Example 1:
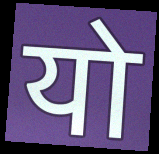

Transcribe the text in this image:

यो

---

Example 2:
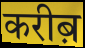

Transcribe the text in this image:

करीब़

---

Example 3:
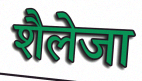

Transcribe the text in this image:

शैलेजा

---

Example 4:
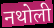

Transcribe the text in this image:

नथोली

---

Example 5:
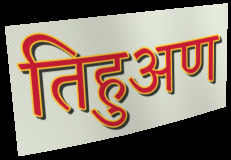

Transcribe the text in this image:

तिहुअण